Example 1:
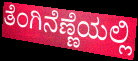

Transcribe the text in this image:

ತೆಂಗಿನೆಣ್ಣೆಯಲ್ಲಿ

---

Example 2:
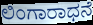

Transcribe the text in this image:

ಲಿಂಗಾರಾಧನೆ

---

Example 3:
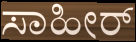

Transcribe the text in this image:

ಸಾಹೀರ್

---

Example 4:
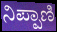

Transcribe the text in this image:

ನಿಪ್ಪಾಣಿ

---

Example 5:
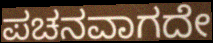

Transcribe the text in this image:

ಪಚನವಾಗದೇ